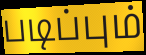
படிப்பும்